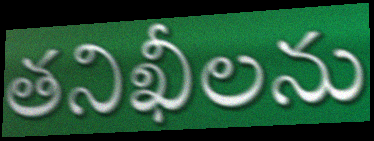
తనిఖీలను